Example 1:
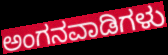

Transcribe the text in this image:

ಅಂಗನವಾಡಿಗಳು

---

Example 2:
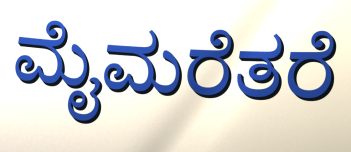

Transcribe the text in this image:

ಮೈಮರೆತರೆ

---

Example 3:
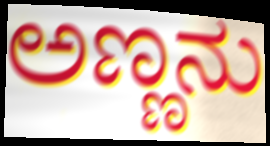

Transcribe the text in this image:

ಅಣ್ಣನು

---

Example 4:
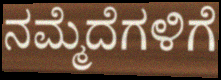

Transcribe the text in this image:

ನಮ್ಮೆದೆಗಳಿಗೆ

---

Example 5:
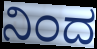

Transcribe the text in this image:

ನಿಂದ